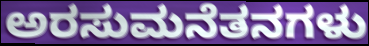
ಅರಸುಮನೆತನಗಳು